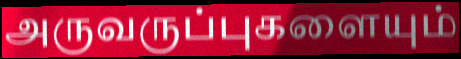
அருவருப்புகளையும்